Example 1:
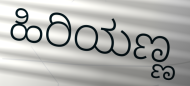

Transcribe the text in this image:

ಹಿರಿಯಣ್ಣ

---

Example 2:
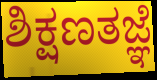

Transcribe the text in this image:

ಶಿಕ್ಷಣತಜ್ಞೆ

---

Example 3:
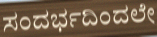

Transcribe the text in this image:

ಸಂದರ್ಭದಿಂದಲೇ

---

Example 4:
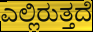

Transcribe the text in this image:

ಎಲ್ಲಿರುತ್ತದೆ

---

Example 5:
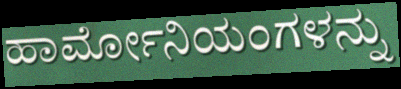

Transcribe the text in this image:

ಹಾರ್ಮೋನಿಯಂಗಳನ್ನು